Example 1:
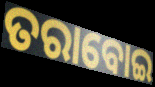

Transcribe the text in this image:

ତରାବୋଇ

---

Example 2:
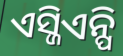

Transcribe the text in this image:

ଏସ୍ଜିଏନ୍ପି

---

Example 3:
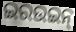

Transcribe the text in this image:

ଇରଉଇନ୍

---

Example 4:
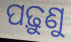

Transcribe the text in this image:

ପଢ଼ୁଣୁ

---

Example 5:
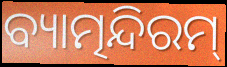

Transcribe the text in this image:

ବ୍ୟାତ୍ମନ୍ଦିରମ୍